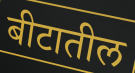
बीटातील